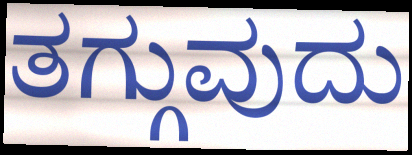
ತಗ್ಗುವುದು